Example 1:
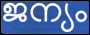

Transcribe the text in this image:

ജന്യം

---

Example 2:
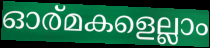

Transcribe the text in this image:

ഓര്മകളെല്ലാം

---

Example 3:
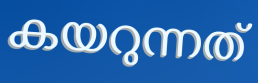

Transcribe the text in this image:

കയറുന്നത്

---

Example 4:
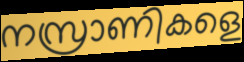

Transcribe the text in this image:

നസ്രാണികളെ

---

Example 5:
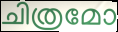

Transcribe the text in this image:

ചിത്രമോ